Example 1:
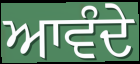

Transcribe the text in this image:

ਆਵੰਦੇ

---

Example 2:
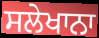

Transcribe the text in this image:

ਸਲੇਖਾਨਾ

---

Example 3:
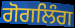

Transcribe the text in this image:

ਗੋਗਲਿੰਗ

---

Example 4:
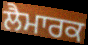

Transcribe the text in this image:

ਲੈਮਾਰਕ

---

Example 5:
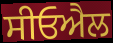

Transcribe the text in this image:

ਸੀਓਐਲ